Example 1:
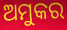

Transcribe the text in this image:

ଅମୁକର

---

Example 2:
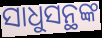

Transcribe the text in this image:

ସାଧୁସନ୍ଥଙ୍କ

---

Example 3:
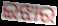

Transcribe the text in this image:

ଇଝାର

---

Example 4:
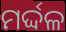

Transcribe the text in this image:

ମର୍ଦ୍ଦଳ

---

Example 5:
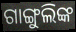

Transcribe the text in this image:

ଗାଙ୍ଗୁଲିଙ୍କ